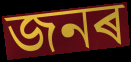
জনৰ